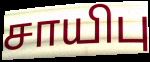
சாயிபு